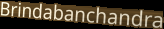
Brindabanchandra